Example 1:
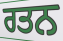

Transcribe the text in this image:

ਰਤਨ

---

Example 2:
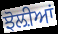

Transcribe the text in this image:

ਝੋਲ਼ੀਆਂ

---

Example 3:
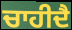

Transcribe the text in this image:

ਚਾਹੀਦੈ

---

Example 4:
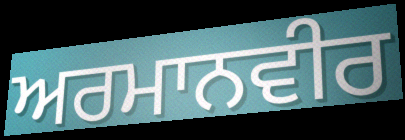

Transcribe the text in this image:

ਅਰਮਾਨਵੀਰ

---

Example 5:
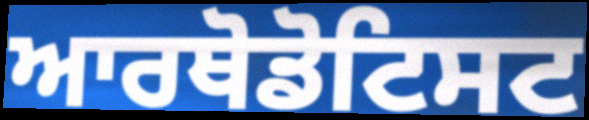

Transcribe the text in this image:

ਆਰਥੋਡੋਟਿਸਟ